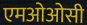
एमओओसी